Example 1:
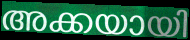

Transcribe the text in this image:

അക്കയായി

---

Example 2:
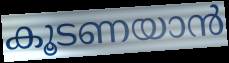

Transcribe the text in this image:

കൂടണയാൻ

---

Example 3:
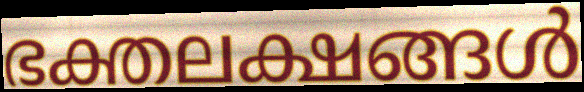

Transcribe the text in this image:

ഭക്തലക്ഷങ്ങൾ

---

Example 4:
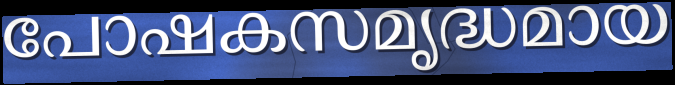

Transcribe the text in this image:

പോഷകസമൃദ്ധമായ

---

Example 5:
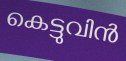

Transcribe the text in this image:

കെട്ടുവിൻ